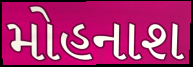
મોહનાશ